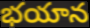
భయాన